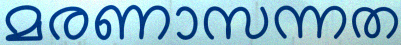
മരണാസന്നത